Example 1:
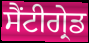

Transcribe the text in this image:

ਸੈਂਟੀਗ੍ਰੇਡ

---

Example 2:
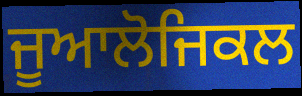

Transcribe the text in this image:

ਜੂਆਲੋਜਿਕਲ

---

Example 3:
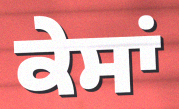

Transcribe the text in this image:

ਕੇਸਾਂ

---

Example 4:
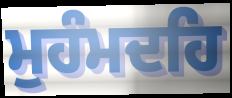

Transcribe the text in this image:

ਮੁਹੰਮਦਹਿ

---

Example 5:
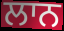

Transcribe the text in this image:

ਲਾਨ